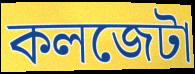
কলজেটা